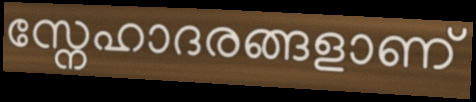
സ്നേഹാദരങ്ങളാണ്